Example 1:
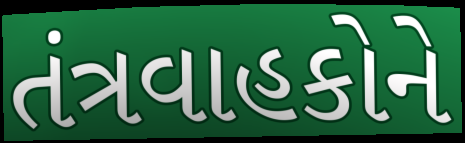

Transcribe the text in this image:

તંત્રવાહકોને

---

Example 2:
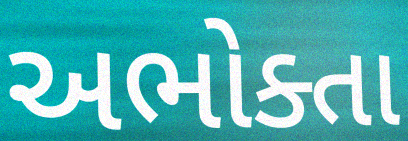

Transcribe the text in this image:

અભોક્તા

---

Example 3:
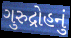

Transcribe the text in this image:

ગુરુદ્રોહનું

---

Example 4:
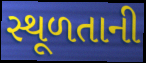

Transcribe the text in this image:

સ્થૂળતાની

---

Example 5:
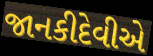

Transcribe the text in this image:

જાનકીદેવીએ